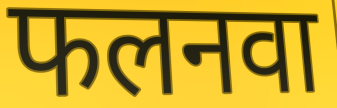
फलनवा